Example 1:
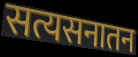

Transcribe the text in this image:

सत्यसनातन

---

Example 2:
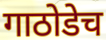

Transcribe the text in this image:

गाठोडेच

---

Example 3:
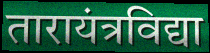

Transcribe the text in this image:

तारायंत्रविद्या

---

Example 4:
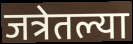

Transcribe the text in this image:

जत्रेतल्या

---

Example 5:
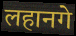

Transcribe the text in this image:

लहानगे